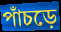
পাঁচড়ে